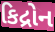
કિદ્રોન